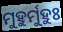
ମୁହୁର୍ମୁହୁଃ